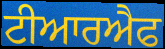
ਟੀਆਰਐਫ